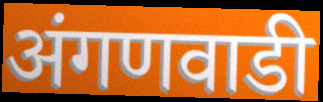
अंगणवाडी